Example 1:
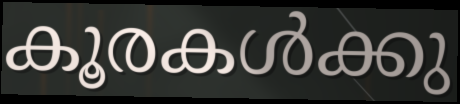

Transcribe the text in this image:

കൂരകൾക്കു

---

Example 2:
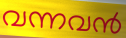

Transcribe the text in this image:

വന്നവൻ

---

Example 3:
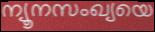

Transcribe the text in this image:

ന്യൂനസംഖ്യയെ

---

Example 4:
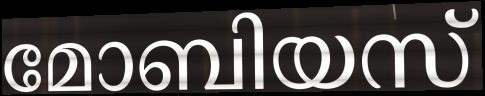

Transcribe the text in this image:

മോബിയസ്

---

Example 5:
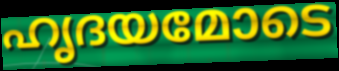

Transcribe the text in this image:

ഹൃദയമോടെ